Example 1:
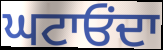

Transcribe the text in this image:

ਘਟਾਓਂਦਾ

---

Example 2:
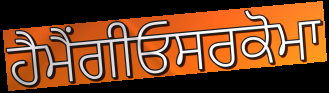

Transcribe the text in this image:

ਹੈਮੈਂਗੀਓਸਰਕੋਮਾ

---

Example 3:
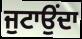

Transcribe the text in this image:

ਜੁਟਾਉਂਦਾ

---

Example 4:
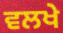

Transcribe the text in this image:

ਵਲਖੇ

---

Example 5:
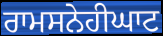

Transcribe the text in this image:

ਰਾਮਸਨੇਹੀਘਾਟ